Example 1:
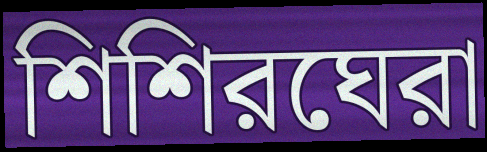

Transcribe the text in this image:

শিশিরঘেরা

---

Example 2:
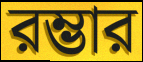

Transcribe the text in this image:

রম্ভার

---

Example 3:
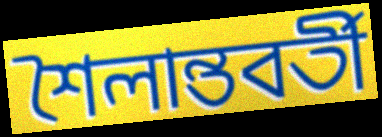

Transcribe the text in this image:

শৈলান্তবর্তী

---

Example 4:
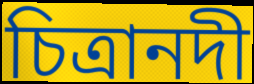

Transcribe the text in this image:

চিত্রানদী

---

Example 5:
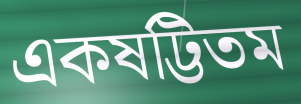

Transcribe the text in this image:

একষট্টিতম